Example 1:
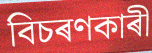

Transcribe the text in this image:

বিচৰণকাৰী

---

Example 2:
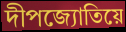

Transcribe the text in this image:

দীপজ্যোতিয়ে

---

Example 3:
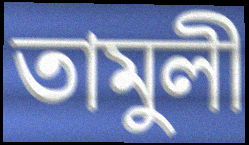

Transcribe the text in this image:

তামুলী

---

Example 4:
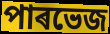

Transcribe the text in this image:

পাৰভেজ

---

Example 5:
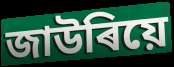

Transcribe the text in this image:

জাউৰিয়ে